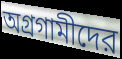
অগ্রগামীদের